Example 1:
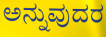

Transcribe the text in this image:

ಅನ್ನುವುದರ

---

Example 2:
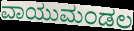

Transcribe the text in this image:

ವಾಯುಮಂಡಲ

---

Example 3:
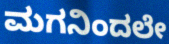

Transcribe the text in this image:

ಮಗನಿಂದಲೇ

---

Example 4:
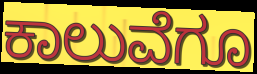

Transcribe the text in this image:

ಕಾಲುವೆಗೂ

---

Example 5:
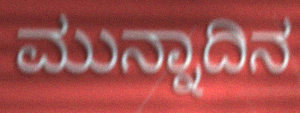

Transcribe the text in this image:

ಮುನ್ನಾದಿನ